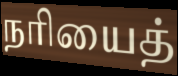
நரியைத்